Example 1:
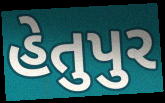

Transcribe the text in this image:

હેતુપુર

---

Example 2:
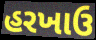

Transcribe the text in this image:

હરખાઉ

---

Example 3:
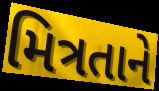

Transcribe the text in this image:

મિત્રતાને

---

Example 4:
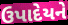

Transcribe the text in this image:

ઉપાદેયને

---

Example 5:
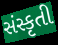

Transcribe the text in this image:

સંસ્કૃતી